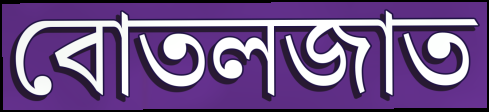
বোতলজাত